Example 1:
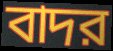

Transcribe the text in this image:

বাদর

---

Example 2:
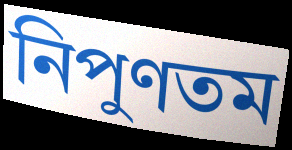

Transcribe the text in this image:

নিপুণতম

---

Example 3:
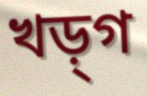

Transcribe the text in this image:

খড়্‌গ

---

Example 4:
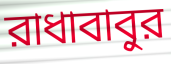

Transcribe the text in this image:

রাধাবাবুর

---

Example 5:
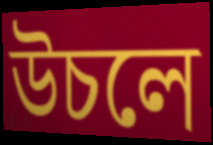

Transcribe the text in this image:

উচলে